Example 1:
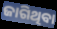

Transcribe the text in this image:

ଜାଗିଥିବା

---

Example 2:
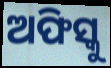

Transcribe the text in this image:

ଅଫିସ୍କୁ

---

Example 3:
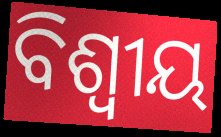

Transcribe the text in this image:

ବିଶ୍ଵୀୟ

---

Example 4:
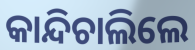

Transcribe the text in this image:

କାନ୍ଦିଚାଲିଲେ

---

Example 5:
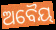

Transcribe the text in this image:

ଅବୈୟ